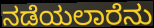
ನಡೆಯಲಾರೆನು